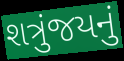
શત્રુંજયનું